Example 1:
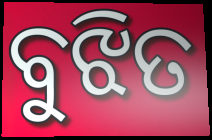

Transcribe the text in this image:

ବୁଝିତ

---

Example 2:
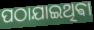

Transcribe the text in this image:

ପଠାଯାଇଥିଵା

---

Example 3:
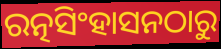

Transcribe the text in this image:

ରତ୍ନସିଂହାସନଠାରୁ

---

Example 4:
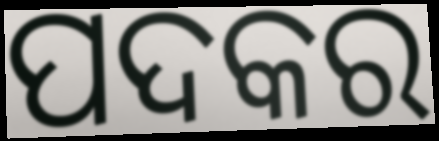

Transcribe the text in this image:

ପଦକର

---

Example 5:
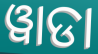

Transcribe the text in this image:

ୱାଡା